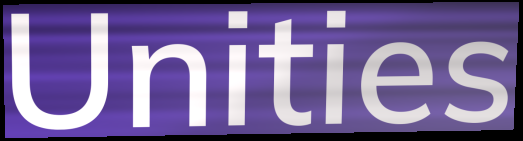
Unities